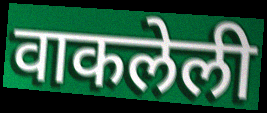
वाकलेली